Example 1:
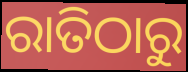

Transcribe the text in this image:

ରାତିଠାରୁ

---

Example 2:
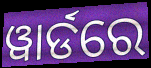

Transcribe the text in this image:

ୱାର୍ଡରେ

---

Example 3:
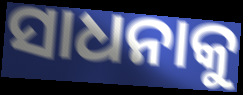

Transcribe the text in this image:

ସାଧନାକୁ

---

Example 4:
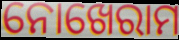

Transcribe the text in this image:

ନୋଖେରାମ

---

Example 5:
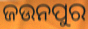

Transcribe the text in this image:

ଜଉନପୁର